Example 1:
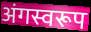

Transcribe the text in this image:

अंगस्वरूप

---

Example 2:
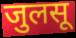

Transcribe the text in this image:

जुलसू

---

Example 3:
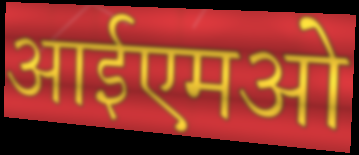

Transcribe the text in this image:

आईएमओ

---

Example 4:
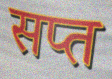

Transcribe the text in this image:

सप्त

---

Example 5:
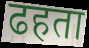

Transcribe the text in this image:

ढहता